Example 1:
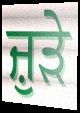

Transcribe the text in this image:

ਜ਼ੁੜੇ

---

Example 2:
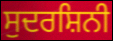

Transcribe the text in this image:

ਸੁਦਰਸ਼ਿਨੀ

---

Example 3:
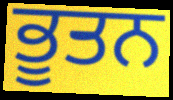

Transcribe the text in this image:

ਭੂਤਨ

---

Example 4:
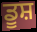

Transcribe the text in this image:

ਡੂਸ਼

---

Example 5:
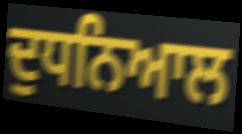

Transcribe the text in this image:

ਦੁਧਨਿਆਲ